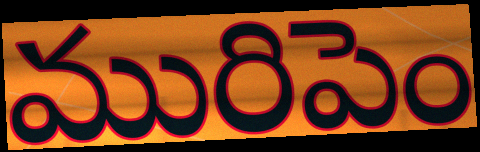
మురిపెం